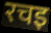
रचइ